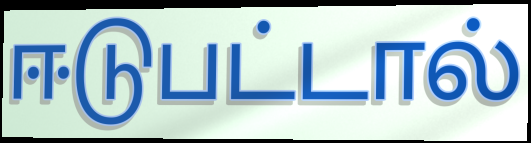
ஈடுபட்டால்